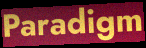
Paradigm